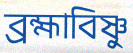
ব্রহ্মাবিষ্ণু